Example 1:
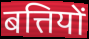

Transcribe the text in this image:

बत्तियों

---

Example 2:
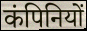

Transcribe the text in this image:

कंपिनियों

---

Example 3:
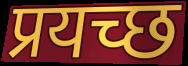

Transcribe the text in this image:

प्रयच्छ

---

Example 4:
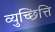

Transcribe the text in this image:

व्युच्छित्ति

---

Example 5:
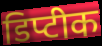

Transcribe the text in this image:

डिप्टीक